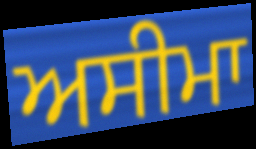
ਅਸੀਮਾ